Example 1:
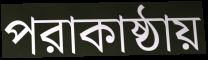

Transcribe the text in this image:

পরাকাষ্ঠায়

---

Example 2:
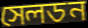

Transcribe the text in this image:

সেলডন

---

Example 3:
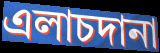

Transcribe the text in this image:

এলাচদানা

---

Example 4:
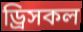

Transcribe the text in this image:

ড্রিসকল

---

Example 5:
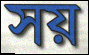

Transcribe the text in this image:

সয়